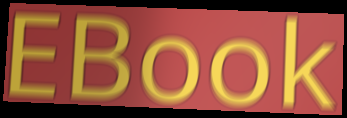
EBook